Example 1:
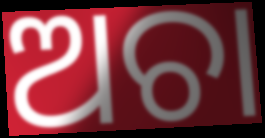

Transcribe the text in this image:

ଅଚା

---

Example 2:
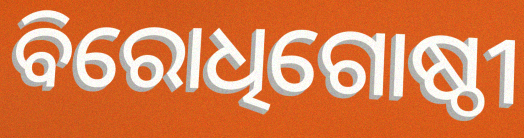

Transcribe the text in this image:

ବିରୋଧିଗୋଷ୍ଠୀ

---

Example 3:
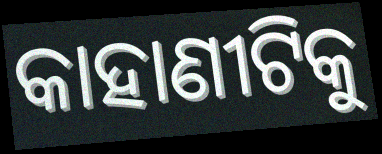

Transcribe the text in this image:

କାହାଣୀଟିକୁ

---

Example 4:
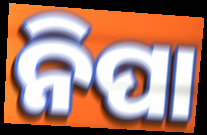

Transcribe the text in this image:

ନିପା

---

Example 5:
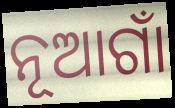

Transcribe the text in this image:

ନୂଆଗାଁ